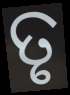
ତୃ